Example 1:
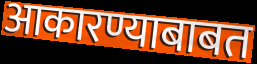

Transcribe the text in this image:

आकारण्याबाबत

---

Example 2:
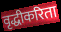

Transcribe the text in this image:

वृद्धीकरिता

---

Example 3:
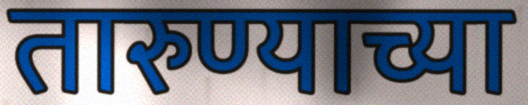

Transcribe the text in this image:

तारुण्याच्या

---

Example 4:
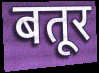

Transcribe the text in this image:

बतूर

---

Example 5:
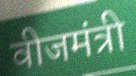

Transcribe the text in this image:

वीजमंत्री